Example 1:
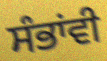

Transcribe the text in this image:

ਸੰਭਾਂਵੀ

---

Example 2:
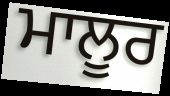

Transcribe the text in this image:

ਮਾਲੂਰ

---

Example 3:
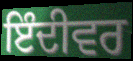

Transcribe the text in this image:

ਇੰਦੀਵਰ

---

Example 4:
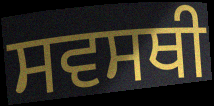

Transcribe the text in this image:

ਸਵਸਥੀ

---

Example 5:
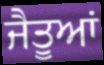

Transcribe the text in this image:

ਜੈਤੂਆਂ